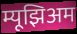
म्यूझिअम